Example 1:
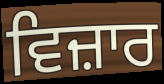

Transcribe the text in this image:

ਵਿਜ਼ਾਰ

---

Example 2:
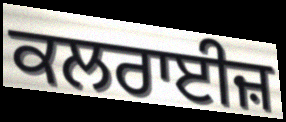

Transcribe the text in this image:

ਕਲਰਾਈਜ਼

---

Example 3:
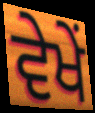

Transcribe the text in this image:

ਵੇਖੇਂ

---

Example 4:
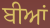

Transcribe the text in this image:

ਬੀਆਂ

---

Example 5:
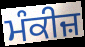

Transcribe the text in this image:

ਮੰਕੀਜ਼